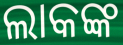
ଲାକଙ୍କ